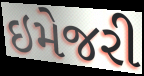
ઇમેજરી